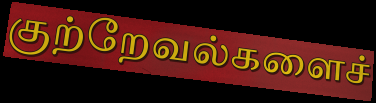
குற்றேவல்களைச்